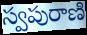
స్వపురాణి